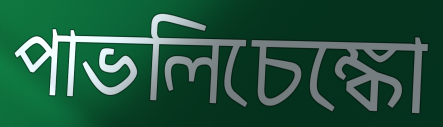
পাভলিচেঙ্কো